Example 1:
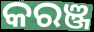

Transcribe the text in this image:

କରଞ୍ଜ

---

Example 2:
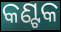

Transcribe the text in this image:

କଣ୍ଟକ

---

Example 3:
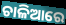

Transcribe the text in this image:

ଚାଳିଆରେ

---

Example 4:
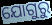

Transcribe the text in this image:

ଯୋଗୁରୁ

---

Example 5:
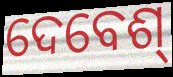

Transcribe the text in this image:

ଦେବେଶ୍